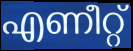
എണീറ്റ്